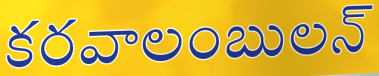
కరవాలంబులన్